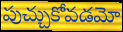
పుచ్చుకోవడమో